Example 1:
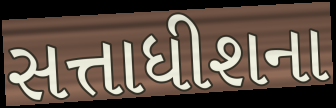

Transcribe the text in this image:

સત્તાધીશના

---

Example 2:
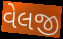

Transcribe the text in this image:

વેલજી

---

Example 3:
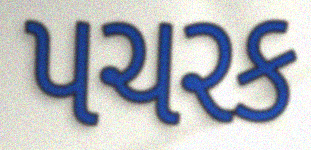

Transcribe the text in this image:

પચરક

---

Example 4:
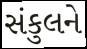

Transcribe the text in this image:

સંકુલને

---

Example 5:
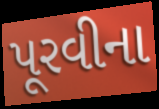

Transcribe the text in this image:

પૂરવીના